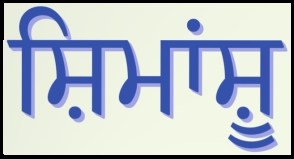
ਸ਼ਿਮਾਂਸ਼ੂ